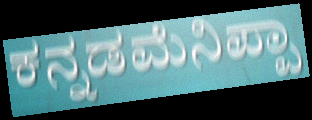
ಕನ್ನಡಮೆನಿಪ್ಪಾ